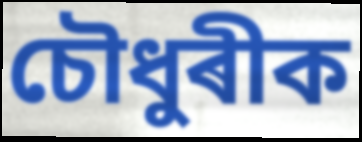
চৌধুৰীক